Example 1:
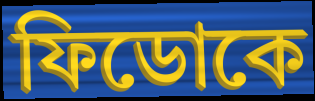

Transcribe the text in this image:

ফিডোকে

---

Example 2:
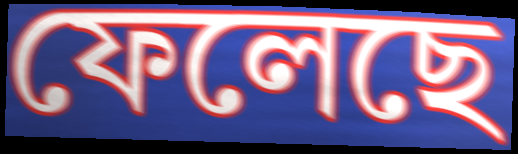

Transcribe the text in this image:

ফেলেছে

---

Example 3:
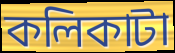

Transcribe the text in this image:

কলিকাটা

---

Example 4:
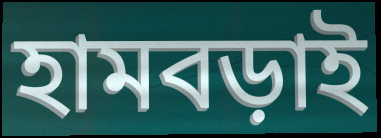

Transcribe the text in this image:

হামবড়াই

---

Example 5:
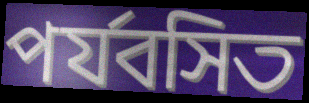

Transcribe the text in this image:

পর্যবসিত